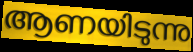
ആണയിടുന്നു